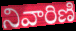
నివారిణి